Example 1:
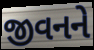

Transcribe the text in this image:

જીવનને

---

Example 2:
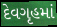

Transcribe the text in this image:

દેવગૃહમાં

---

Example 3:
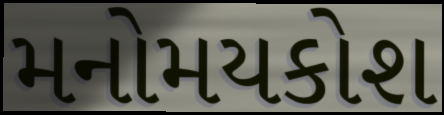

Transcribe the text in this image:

મનોમયકોશ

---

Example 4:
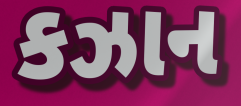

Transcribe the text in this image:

કઝાન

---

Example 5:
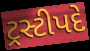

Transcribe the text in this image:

ટ્રસ્ટીપદે